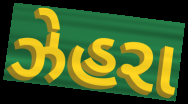
ઝેહરા